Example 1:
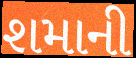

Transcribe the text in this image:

શમાની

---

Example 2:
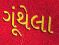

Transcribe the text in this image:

ગૂંથેલા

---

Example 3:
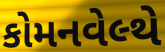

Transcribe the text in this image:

કોમનવેલ્થે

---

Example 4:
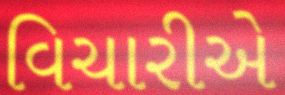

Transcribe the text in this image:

વિચારીએ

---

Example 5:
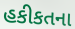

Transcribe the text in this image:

હકીકતના